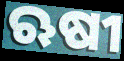
ଋଷୀ